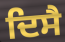
ਦਿਸੈ